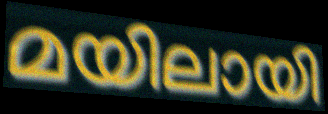
മയിലായി